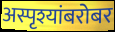
अस्पृश्यांबरोबर